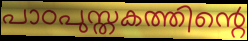
പാഠപുസ്തകത്തിന്റെ